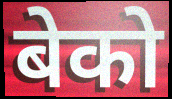
बेको